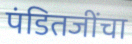
पंडितजींचा